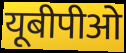
यूबीपीओ